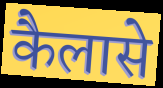
कैलासे